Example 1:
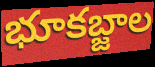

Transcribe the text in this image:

భూకబ్జాల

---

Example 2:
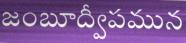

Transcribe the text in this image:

జంబూద్వీపమున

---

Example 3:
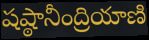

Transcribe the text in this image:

షష్ఠానీంద్రియాణి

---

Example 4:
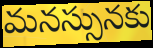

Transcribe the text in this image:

మనస్సునకు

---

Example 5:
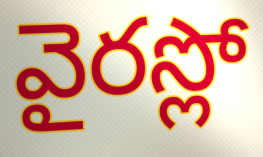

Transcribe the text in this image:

వైరస్లో